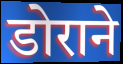
डोराने